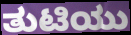
ತುಟಿಯು